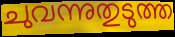
ചുവന്നുതുടുത്ത